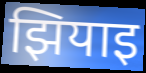
झियाइ